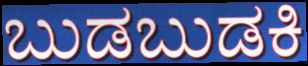
ಬುಡಬುಡಕಿ